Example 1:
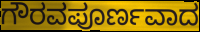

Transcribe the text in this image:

ಗೌರವಪೂರ್ಣವಾದ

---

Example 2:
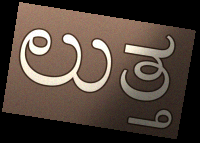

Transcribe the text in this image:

ಲುತ್ತ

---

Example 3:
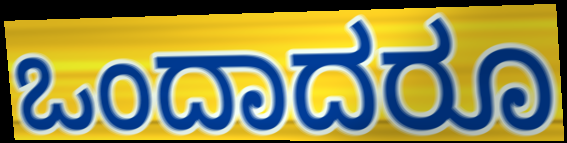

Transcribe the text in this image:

ಒಂದಾದರೂ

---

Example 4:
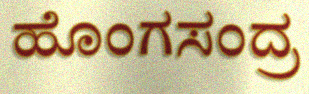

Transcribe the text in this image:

ಹೊಂಗಸಂದ್ರ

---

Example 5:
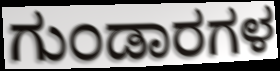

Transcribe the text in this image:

ಗುಂಡಾರಗಳ